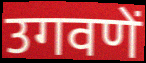
उगवणें